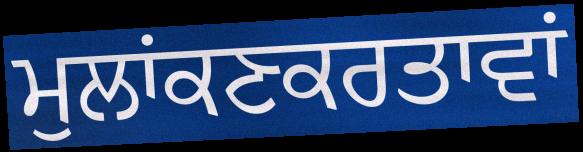
ਮੁਲਾਂਕਣਕਰਤਾਵਾਂ